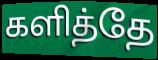
களித்தே